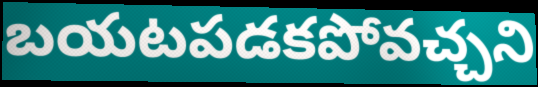
బయటపడకపోవచ్చని